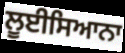
ਲੂਈਸਿਆਨਾ